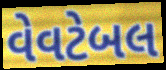
વેવટેબલ